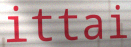
ittai